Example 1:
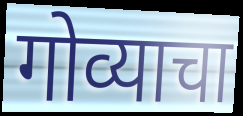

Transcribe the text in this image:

गोव्याचा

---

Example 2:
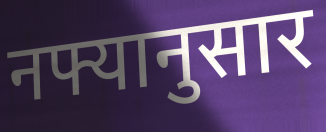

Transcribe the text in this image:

नफ्यानुसार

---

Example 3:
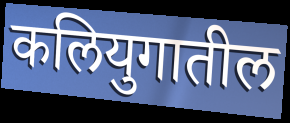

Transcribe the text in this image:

कलियुगातील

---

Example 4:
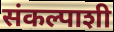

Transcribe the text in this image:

संकल्पाशी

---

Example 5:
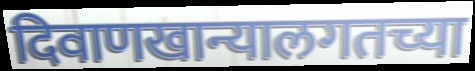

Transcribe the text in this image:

दिवाणखान्यालगतच्या